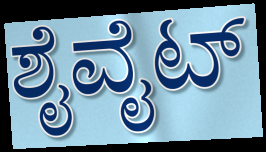
ಶೈವೈಟ್